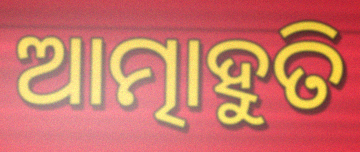
ଆତ୍ମାହୁତି